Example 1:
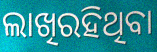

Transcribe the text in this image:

ଲାଖିରହିଥିବା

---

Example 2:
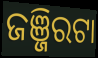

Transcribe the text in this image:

ଜଞ୍ଜିରଟା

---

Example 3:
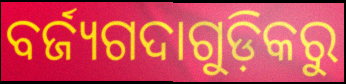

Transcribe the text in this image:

ବର୍ଜ୍ୟଗଦାଗୁଡ଼ିକରୁ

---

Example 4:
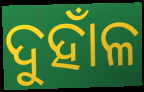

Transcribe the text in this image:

ଦୁହାଁଳ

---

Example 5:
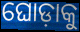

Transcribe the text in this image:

ଘୋଡ଼ାକୁ